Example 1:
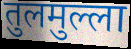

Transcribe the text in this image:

तुलमुल्ला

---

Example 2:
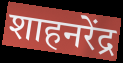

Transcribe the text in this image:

शाहनरेंद्र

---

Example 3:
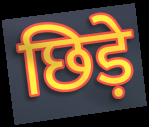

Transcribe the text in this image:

छिड़े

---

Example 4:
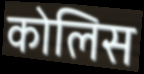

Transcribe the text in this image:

कोलिस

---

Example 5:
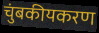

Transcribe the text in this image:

चुंबकीयकरण